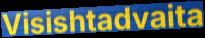
Visishtadvaita